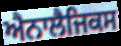
ਐਨਾਲੈਜਿਕਸ